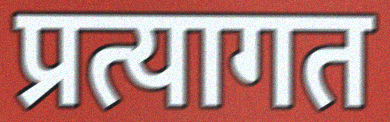
प्रत्यागत